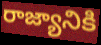
రాజ్యానికి